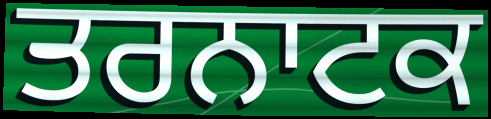
ਤਰਨਾਟਕ